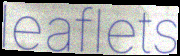
leaflets